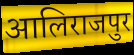
आलिराजपुर